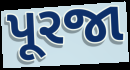
પૂરજા